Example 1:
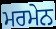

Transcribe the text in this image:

ਮਰਮੇਨ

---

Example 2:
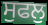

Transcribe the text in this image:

ਸੁਫਲੁ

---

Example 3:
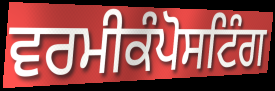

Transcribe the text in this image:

ਵਰਮੀਕੰਪੋਸਟਿੰਗ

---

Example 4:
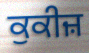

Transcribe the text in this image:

ਕੁਕੀਜ਼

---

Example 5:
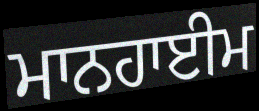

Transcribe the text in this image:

ਮਾਨਹਾਈਮ